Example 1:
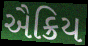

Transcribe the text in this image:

ઐક્રિય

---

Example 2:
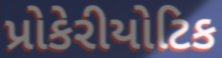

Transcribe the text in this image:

પ્રોકેરીયોટિક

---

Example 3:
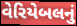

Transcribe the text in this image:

વેરિયેબલનું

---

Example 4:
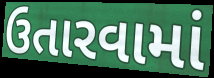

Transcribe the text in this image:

ઉતારવામાં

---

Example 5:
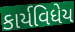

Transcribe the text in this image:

કાર્યવિધેય